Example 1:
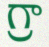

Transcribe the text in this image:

గ్రా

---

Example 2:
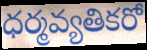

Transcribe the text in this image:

ధర్మవ్యతికరో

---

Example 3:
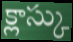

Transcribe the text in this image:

క్లాస్కు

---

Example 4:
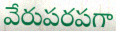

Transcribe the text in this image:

వేరుపరపగా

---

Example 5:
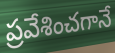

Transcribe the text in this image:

ప్రవేశించగానే